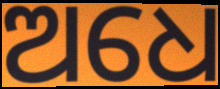
ଅଧେ